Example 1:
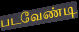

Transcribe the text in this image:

படவேண்டி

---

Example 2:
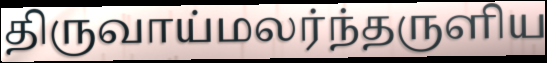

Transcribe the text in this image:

திருவாய்மலர்ந்தருளிய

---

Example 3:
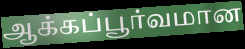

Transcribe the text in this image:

ஆக்கப்பூர்வமான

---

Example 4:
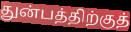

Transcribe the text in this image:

துன்பத்திற்குத்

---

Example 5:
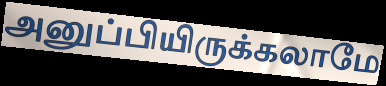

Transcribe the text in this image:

அனுப்பியிருக்கலாமே